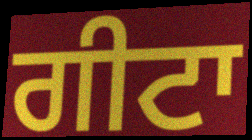
ਗੀਟਾ